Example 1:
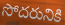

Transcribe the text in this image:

సోదరునికి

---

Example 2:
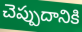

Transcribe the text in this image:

చెప్పుదానికి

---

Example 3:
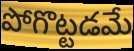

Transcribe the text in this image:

పోగొట్టడమే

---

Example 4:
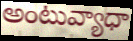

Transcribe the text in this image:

అంటువ్యాధా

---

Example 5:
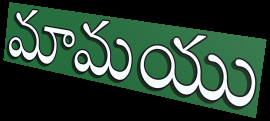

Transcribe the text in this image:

మామయు